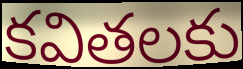
కవితలకు